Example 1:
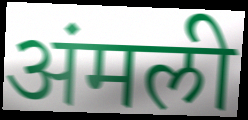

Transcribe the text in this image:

अंमली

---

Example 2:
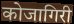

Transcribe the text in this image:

कोजागिरी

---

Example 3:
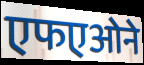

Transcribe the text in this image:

एफएओने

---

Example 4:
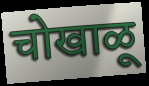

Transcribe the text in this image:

चोखाळू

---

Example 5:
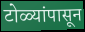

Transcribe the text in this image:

टोळ्यांपासून